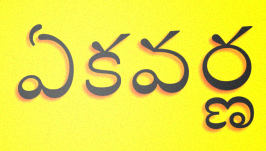
ఏకవర్ణ